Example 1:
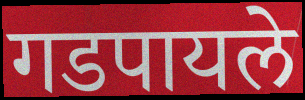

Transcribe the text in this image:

गडपायले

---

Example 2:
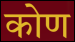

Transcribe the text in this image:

कोण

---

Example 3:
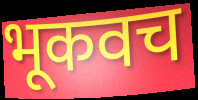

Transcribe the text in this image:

भूकवच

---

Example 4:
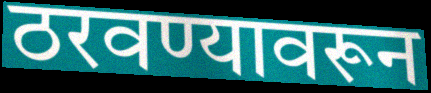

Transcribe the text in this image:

ठरवण्यावरून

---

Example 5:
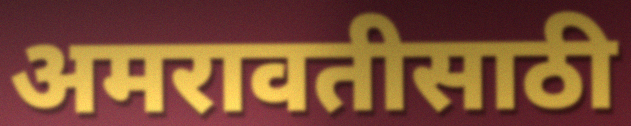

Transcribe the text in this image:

अमरावतीसाठी